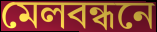
মেলবন্ধনে